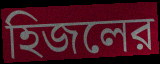
হিজলের